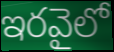
ఇరవైలో